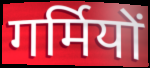
गर्मियों